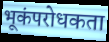
भूकंपरोधकता